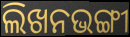
ଲିଖନଭଙ୍ଗୀ